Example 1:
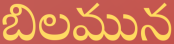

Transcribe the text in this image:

బిలమున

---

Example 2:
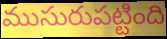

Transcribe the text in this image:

ముసురుపట్టింది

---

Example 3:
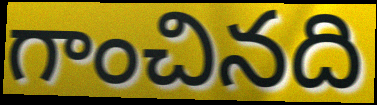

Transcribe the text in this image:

గాంచినది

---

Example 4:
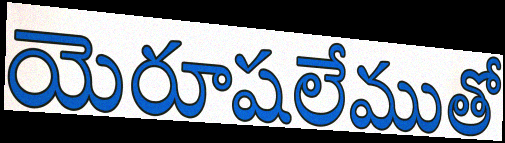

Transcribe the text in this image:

యెరూషలేముతో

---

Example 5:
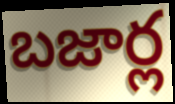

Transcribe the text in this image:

బజార్ల